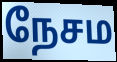
நேசம